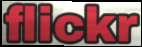
flickr